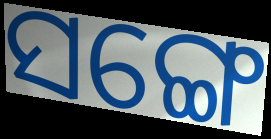
ସଙ୍ଗେ